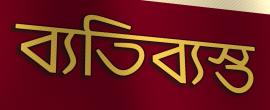
ব্যতিব্যস্ত